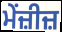
ਮੇਂਜ਼ੀਜ਼